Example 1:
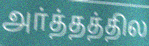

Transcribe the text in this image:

அர்த்தத்தில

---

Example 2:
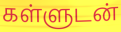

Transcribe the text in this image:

கள்ளுடன்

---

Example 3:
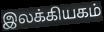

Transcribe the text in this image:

இலக்கியகம்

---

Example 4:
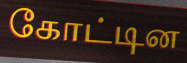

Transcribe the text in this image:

கோட்டின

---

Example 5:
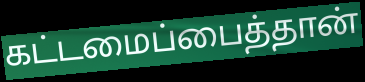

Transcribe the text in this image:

கட்டமைப்பைத்தான்